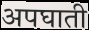
अपघाती